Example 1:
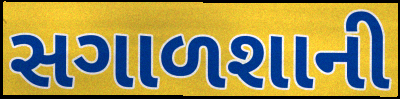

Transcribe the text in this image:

સગાળશાની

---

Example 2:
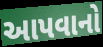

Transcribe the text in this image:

આપવાનો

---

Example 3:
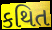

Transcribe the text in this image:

કથિત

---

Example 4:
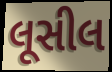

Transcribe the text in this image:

લૂસીલ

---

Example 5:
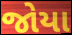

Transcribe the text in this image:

જોયા